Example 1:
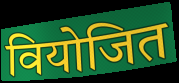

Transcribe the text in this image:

वियोजित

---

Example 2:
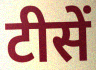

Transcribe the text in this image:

टीसें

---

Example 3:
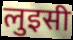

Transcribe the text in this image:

लुइसी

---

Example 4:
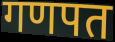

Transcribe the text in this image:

गणपत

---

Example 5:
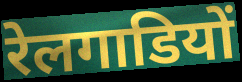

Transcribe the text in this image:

रेलगाडियों